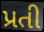
પ્રતી